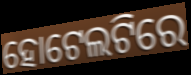
ହୋଟେଲଟିରେ